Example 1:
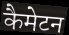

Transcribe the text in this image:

कैमेटन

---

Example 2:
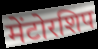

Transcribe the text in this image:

मेंटोरशिप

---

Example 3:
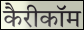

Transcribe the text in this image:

कैरीकॉम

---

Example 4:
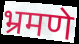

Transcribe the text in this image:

भ्रमणे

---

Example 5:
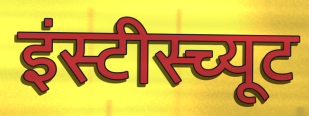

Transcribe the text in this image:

इंस्टीस्च्यूट